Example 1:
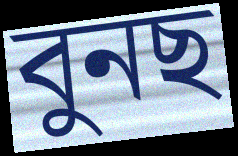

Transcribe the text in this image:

বুনছ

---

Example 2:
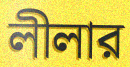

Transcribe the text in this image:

লীলার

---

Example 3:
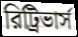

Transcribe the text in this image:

রিট্রিভার্স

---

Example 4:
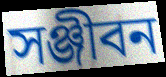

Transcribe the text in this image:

সঞ্জীবন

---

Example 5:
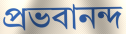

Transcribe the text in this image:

প্রভবানন্দ